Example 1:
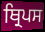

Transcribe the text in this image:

ਥ੍ਰਿਪਸ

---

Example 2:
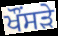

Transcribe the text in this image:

ਖੌਂਸੜੇ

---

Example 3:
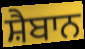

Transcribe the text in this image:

ਸ਼ੈਬਾਨ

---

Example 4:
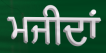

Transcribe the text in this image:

ਮਜੀਦਾਂ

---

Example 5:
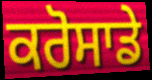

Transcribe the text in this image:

ਕਰੋਸਾਡੇ